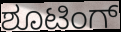
ಶೂಟಿಂಗ್